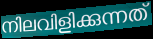
നിലവിളിക്കുന്നത്